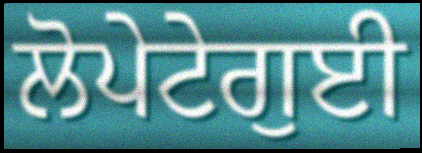
ਲੋਪੇਟੇਗੁਈ